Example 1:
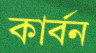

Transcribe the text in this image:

কার্বন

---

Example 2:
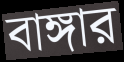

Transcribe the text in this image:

বাঙ্গার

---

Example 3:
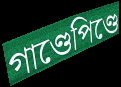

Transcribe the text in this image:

গাণ্ডেপিণ্ডে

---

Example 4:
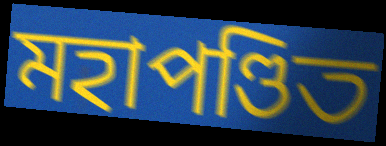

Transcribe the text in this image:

মহাপণ্ডিত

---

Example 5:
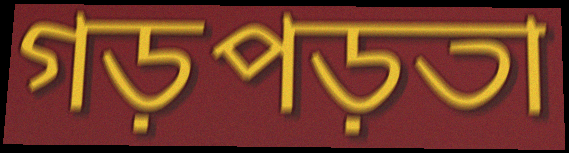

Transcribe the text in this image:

গড়পড়তা